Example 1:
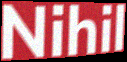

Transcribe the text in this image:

Nihil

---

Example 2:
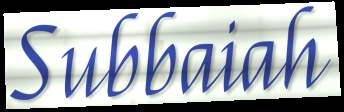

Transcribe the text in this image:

Subbaiah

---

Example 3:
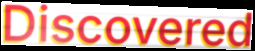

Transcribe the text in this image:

Discovered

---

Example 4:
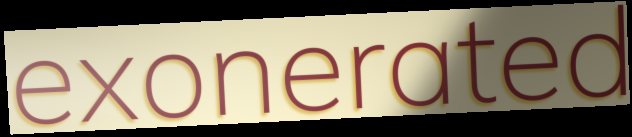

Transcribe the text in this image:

exonerated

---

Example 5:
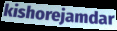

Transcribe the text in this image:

kishorejamdar